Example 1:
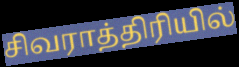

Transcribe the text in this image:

சிவராத்திரியில்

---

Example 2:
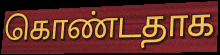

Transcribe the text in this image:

கொண்டதாக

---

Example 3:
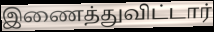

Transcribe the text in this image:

இணைத்துவிட்டார்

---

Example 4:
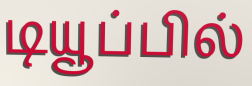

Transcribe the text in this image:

டியூப்பில்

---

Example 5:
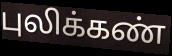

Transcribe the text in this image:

புலிக்கண்